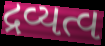
દ્રવ્યત્વ